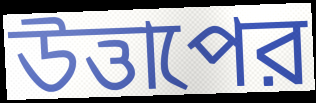
উত্তাপের